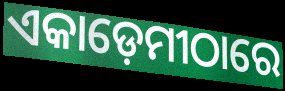
ଏକାଡ଼େମୀଠାରେ